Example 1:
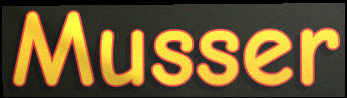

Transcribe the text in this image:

Musser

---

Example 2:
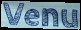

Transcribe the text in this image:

Venu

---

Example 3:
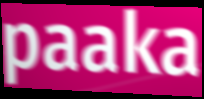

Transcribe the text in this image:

paaka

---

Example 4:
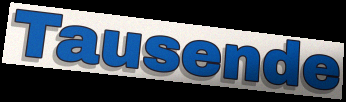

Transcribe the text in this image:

Tausende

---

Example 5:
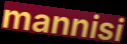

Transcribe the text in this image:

mannisi